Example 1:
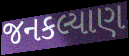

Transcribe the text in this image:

જનકલ્યાણ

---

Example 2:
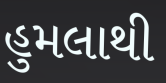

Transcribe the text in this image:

હુમલાથી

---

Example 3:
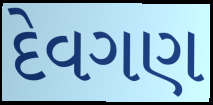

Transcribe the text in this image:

દેવગણ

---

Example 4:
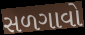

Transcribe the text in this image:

સળગાવો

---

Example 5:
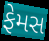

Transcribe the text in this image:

ફેમસ